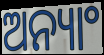
ଅନ୍ୟାଂ